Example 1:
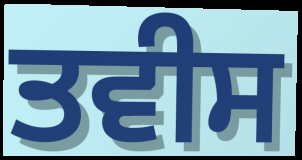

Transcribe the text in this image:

ਤਵੀਸ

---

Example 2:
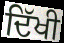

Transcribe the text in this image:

ਦਿੱਖੀ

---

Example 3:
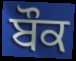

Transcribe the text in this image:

ਬੌਕ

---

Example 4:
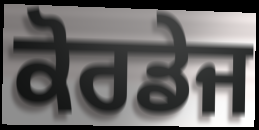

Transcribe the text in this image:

ਕੋਰਡੇਜ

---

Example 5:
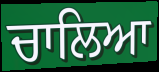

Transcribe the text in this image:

ਚਾਲਿਆ